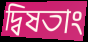
দ্বিষতাং